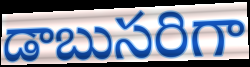
డాబుసరిగా